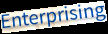
Enterprising